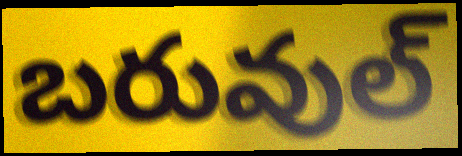
బరువుల్